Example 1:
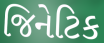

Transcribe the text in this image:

જિનેટિક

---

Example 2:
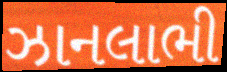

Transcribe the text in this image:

ઝાનલાભી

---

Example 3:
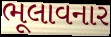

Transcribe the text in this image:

ભૂલાવનાર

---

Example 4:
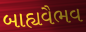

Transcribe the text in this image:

બાહ્યવૈભવ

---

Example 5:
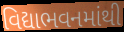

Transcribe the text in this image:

વિદ્યાભવનમાંથી